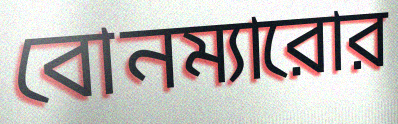
বোনম্যারোর